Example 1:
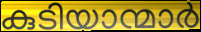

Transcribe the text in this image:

കുടിയാന്മാർ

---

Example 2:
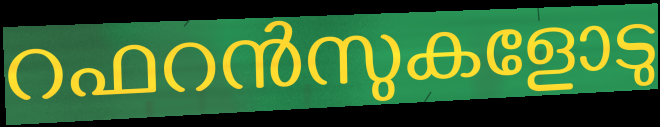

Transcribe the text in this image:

റഫറൻസുകളോടു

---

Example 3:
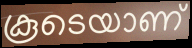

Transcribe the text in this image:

കൂടെയാണ്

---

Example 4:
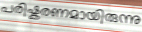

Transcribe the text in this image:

പരിഷ്കരണമായിരുന്നു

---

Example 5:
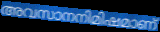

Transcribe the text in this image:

അവസാനനിമിഷമാണ്